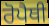
ਰੋਪੈਥੀ